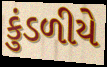
કુંડળીયે